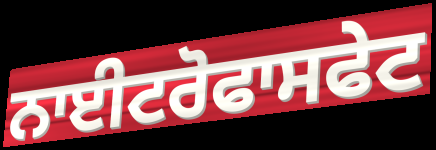
ਨਾਈਟਰੋਫਾਸਫੇਟ